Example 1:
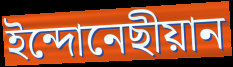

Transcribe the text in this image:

ইন্দোনেছীয়ান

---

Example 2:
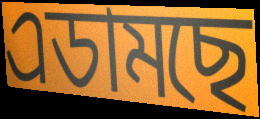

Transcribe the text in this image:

এডামছে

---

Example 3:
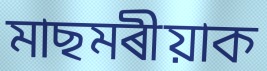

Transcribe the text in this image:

মাছমৰীয়াক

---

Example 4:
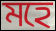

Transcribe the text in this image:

মহে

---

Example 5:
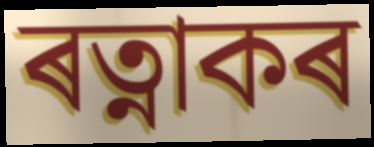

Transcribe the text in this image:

ৰত্নাকৰ